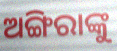
ଅଙ୍ଗିରାଙ୍କୁ